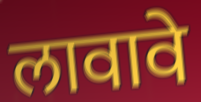
लावावे